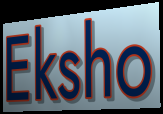
Eksho